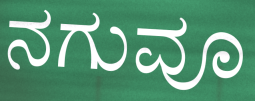
ನಗುವೂ